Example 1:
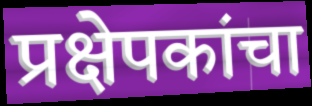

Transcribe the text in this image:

प्रक्षेपकांचा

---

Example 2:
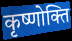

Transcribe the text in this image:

कृष्णोक्ति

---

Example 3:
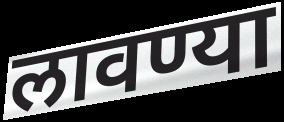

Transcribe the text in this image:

लावण्या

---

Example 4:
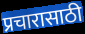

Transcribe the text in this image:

प्रचारासाठी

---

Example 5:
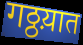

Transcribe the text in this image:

गठ्ठय़ात